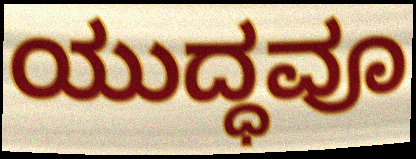
ಯುದ್ಧವೂ